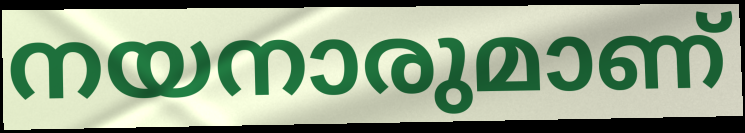
നയനാരുമാണ്